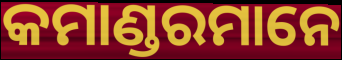
କମାଣ୍ଡରମାନେ